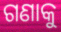
ଗଣାକୁ